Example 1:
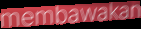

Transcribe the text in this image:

membawakan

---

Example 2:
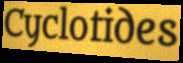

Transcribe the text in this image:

Cyclotides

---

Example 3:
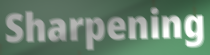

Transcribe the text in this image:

Sharpening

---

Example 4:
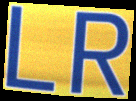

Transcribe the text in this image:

LR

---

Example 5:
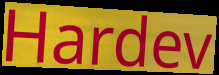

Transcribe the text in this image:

Hardev